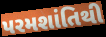
પરમશાંતિથી